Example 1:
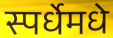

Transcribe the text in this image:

स्पर्धेमधे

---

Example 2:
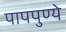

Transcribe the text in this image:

पापपुण्ये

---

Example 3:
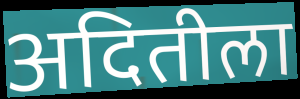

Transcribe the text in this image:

अदितीला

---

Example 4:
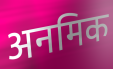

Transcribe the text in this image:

अनमिक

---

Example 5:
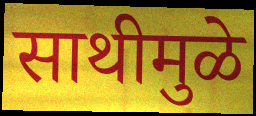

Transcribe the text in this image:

साथीमुळे